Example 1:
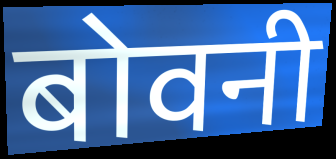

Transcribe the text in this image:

बोवनी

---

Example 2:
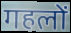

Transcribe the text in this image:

गहलों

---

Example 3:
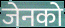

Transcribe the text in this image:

जेनको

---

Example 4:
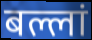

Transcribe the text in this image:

बल्लां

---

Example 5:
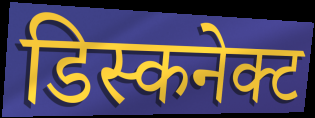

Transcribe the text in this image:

डिस्कनेक्ट